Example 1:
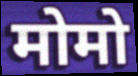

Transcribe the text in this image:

मोमो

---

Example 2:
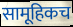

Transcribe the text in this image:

सामूहिकच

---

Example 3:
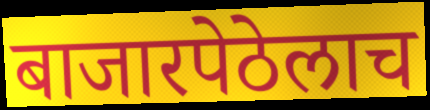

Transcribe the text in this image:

बाजारपेठेलाच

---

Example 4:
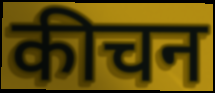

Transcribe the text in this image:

कीचन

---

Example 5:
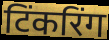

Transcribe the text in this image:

टिंकरिंग